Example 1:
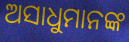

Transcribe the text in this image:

ଅସାଧୁମାନଙ୍କ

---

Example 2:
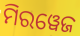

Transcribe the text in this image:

ମିରୱେଜ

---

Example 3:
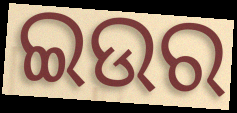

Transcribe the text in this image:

ଇଉର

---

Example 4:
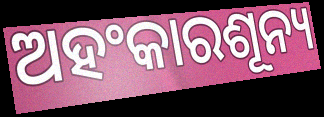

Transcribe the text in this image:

ଅହଂକାରଶୂନ୍ୟ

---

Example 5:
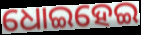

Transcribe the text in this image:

ଧୋଇହେଇ